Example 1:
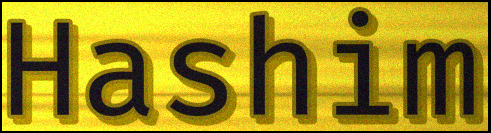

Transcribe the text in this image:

Hashim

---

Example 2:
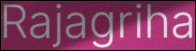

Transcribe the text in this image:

Rajagriha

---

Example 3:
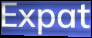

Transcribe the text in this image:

Expat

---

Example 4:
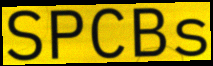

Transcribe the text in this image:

SPCBs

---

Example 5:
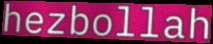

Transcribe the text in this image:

hezbollah